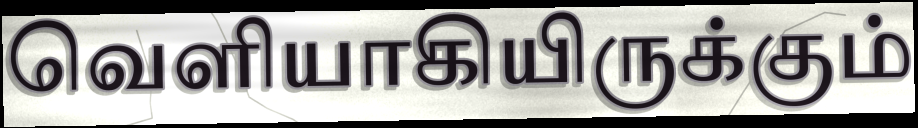
வெளியாகியிருக்கும்